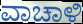
ವಾಚಾಳಿ